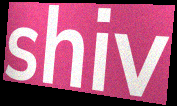
shiv